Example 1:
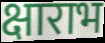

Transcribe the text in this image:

क्षाराभ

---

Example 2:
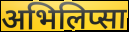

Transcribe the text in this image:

अभिलिप्सा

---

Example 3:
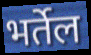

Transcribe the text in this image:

भर्तेल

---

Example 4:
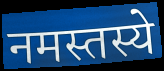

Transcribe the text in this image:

नमस्तस्ये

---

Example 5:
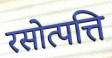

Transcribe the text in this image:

रसोत्पत्ति